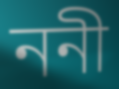
ননী